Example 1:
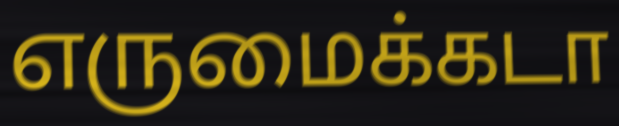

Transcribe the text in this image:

எருமைக்கடா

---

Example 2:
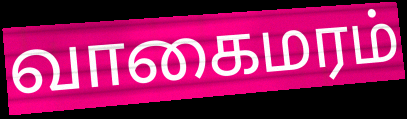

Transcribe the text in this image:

வாகைமரம்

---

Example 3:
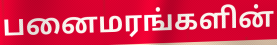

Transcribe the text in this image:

பனைமரங்களின்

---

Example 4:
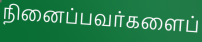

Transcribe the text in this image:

நினைப்பவர்களைப்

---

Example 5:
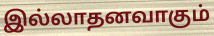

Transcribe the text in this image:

இல்லாதனவாகும்